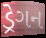
ડ્રેગન